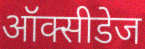
ऑक्सीडेज